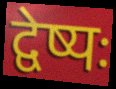
द्वेष्यः